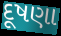
દૂષણા